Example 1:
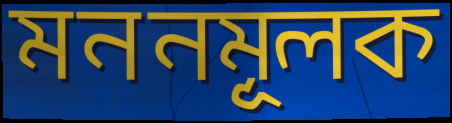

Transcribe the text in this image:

মননমূলক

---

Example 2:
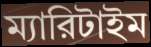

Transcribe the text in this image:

ম্যারিটাইম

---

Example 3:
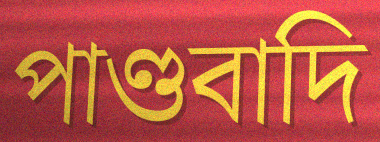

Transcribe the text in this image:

পাণ্ডবাদি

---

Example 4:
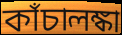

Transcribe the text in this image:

কাঁচালঙ্কা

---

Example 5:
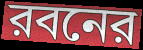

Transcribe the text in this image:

রবনের